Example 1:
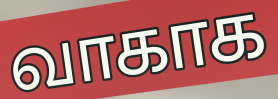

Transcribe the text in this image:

வாகாக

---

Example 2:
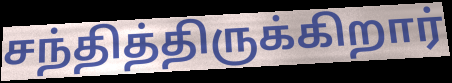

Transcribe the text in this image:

சந்தித்திருக்கிறார்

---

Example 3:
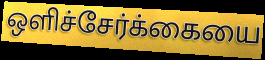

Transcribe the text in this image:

ஒளிச்சேர்க்கையை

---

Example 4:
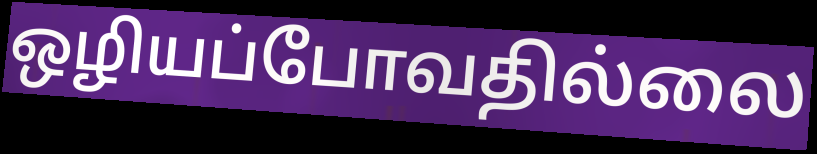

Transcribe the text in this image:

ஒழியப்போவதில்லை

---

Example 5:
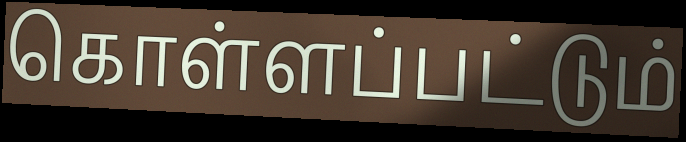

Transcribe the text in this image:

கொள்ளப்பட்டும்